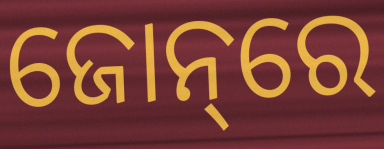
ଜୋନ୍‌ରେ